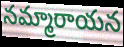
నమ్మారాయన